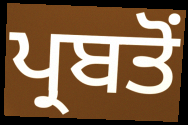
ਪ੍ਰਬਤੋਂ